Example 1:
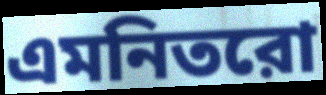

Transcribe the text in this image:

এমনিতরো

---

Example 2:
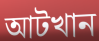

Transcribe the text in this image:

আটখান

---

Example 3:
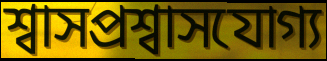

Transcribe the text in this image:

শ্বাসপ্রশ্বাসযোগ্য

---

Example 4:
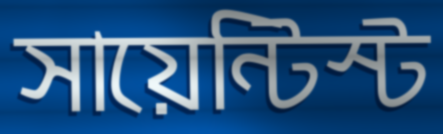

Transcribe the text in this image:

সায়েন্টিস্ট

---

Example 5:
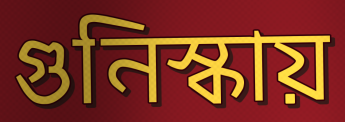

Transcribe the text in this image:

গুনিস্কায়